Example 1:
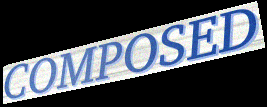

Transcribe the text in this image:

COMPOSED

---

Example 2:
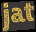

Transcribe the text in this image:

jat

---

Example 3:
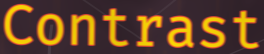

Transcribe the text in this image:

Contrast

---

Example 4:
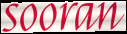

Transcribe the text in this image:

sooran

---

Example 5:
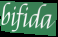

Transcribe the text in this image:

bifida